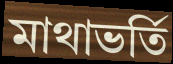
মাথাভর্তি